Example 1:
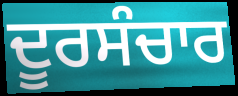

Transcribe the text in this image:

ਦੂਰਸੰਚਾਰ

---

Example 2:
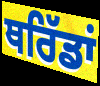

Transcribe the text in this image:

ਥਰਿੱਡਾਂ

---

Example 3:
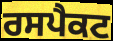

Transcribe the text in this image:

ਰਸਪੈਕਟ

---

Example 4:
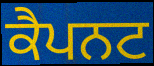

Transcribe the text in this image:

ਕੈਪਨਟ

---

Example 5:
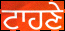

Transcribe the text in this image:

ਟਾਹਣੇ